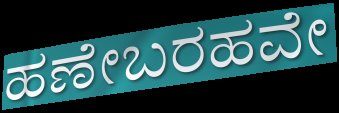
ಹಣೇಬರಹವೇ